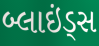
બ્લાઇંડ્સ